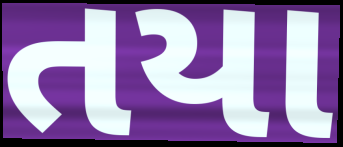
તયા